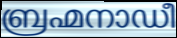
ബ്രഹ്മനാഡീ